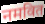
नमवित